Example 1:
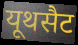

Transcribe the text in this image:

यूथसैट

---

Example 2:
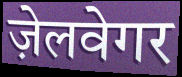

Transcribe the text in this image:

ज़ेलवेगर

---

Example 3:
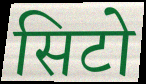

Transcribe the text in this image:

सिटो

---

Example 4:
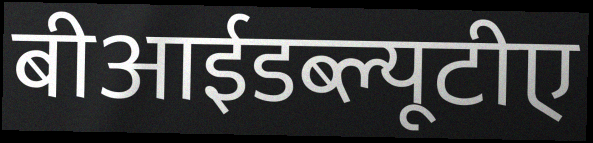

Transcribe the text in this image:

बीआईडब्ल्यूटीए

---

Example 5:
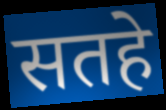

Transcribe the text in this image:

सतहे